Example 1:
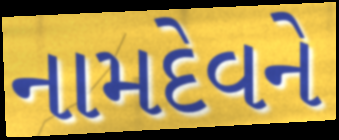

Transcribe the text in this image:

નામદેવને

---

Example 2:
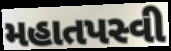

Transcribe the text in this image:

મહાતપસ્વી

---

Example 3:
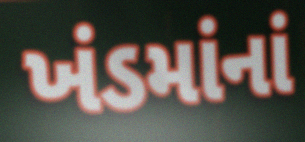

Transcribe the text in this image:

ખંડમાંનાં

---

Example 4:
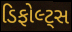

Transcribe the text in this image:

ડિફોલ્ટ્સ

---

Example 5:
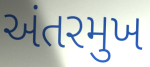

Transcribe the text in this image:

અંતરમુખ